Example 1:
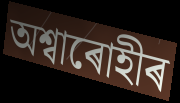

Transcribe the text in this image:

অশ্বাৰোহীৰ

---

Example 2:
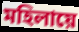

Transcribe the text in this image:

মহিলায়ে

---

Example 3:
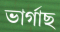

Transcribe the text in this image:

ভাৰ্গাছ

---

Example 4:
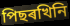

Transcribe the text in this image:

পিছৰখিনি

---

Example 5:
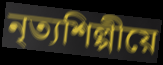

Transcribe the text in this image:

নৃত্যশিল্পীয়ে